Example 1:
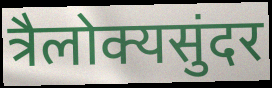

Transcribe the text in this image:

त्रैलोक्यसुंदर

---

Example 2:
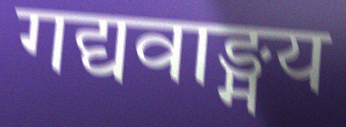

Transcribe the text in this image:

गद्यवाङ्मय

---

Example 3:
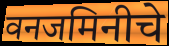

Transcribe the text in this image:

वनजमिनीचे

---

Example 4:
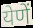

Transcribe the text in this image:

येणें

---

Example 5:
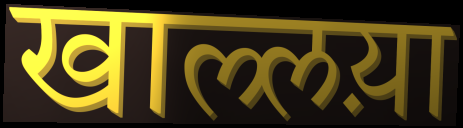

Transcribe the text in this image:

खाल्लय़ा